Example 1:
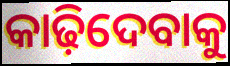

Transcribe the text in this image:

କାଢ଼ିଦେବାକୁ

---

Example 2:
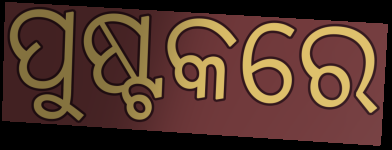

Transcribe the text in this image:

ପୁଷ୍ଟକରେ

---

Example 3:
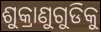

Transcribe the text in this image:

ଶୁକ୍ରାଣୁଗୁଡିକୁ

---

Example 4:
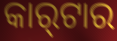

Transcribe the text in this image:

କାର୍‍ଟାର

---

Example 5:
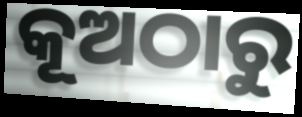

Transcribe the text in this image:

କୂଅଠାରୁ